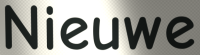
Nieuwe